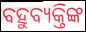
ବହୁବ୍ୟକ୍ତିଙ୍କ